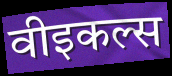
वीइकल्स